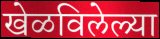
खेळविलेल्या